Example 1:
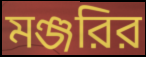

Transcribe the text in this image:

মঞ্জরির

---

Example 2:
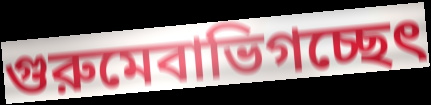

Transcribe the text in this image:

গুরুমেবাভিগচ্ছেৎ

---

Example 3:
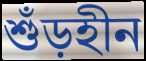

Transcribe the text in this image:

শুঁড়হীন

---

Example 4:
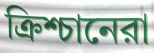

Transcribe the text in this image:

ক্রিশ্চানেরা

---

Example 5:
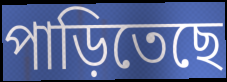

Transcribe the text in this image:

পাড়িতেছে